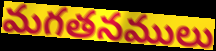
మగతనములు